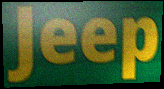
Jeep